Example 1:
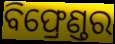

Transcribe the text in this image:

ବିଫ୍ରେଣ୍ଡର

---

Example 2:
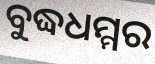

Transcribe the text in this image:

ବୁଦ୍ଧଧମ୍ମର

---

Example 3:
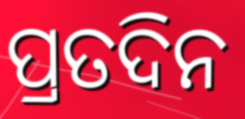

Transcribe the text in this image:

ପ୍ରତଦିନ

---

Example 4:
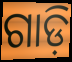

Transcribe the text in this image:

ଗାଡ଼ି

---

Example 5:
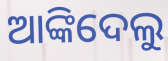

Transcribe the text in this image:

ଆଙ୍କିଦେଲୁ